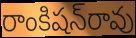
రాంకిషన్‌రావు